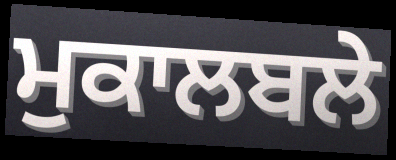
ਮੁਕਾਲਬਲੇ